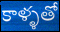
కాళ్ళతో